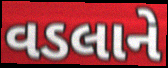
વડલાને